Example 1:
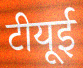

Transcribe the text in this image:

टीयूई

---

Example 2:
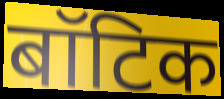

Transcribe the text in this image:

बॉटिक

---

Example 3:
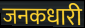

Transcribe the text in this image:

जनकधारी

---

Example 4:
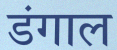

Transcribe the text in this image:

डंगाल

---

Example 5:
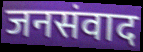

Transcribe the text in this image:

जनसंवाद